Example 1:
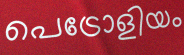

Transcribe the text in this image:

പെട്രോളിയം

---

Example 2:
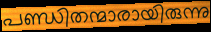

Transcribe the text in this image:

പണ്ഡിതന്മാരായിരുന്നു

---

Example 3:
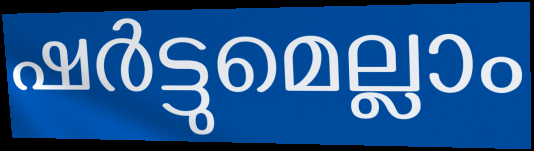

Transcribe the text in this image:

ഷർട്ടുമെല്ലാം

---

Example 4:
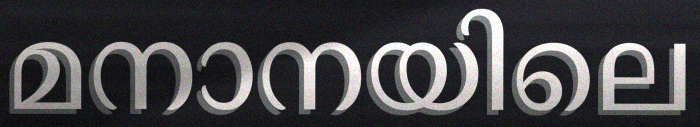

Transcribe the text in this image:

മനാനയിലെ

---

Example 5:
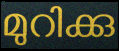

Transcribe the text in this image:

മുറിക്കു